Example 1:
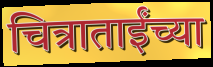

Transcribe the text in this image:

चित्राताईंच्या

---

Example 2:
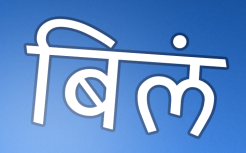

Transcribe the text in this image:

बिलं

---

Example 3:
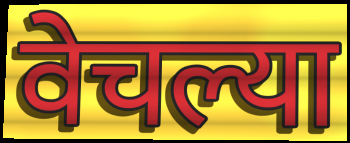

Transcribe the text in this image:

वेचल्या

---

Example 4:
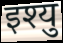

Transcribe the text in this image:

इश्यु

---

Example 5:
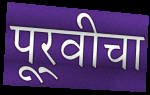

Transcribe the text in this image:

पूर्वीचा